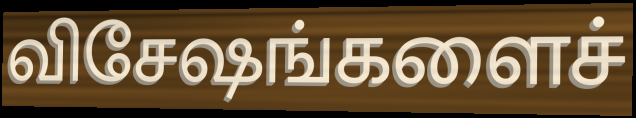
விசேஷங்களைச்